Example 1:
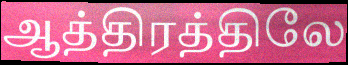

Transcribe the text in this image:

ஆத்திரத்திலே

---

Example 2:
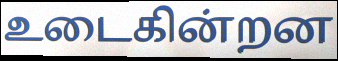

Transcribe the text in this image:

உடைகின்றன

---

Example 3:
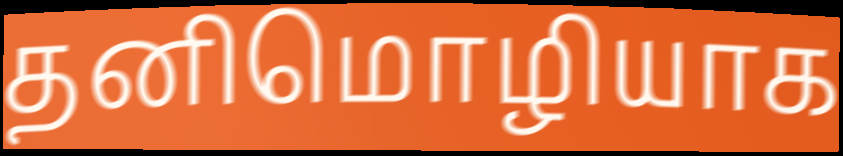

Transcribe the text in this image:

தனிமொழியாக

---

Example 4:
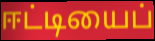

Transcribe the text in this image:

ஈட்டியைப்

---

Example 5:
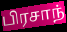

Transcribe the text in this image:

பிரசாந்